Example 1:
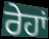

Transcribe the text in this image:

ਰੇਹਾਂ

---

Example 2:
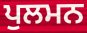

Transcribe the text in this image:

ਪੁਲਮਨ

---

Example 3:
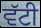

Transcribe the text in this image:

ਵੱਟੀ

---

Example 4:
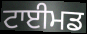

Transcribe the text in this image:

ਟਾਈਮਡ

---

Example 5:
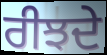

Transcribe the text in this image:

ਰੀਝਦੇ